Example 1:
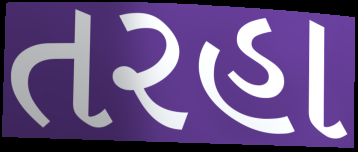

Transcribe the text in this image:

તરહા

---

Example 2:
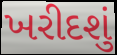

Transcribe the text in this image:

ખરીદશું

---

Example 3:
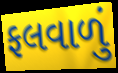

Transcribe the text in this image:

ફલવાળું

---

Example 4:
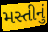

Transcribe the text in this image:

મસ્તીનું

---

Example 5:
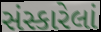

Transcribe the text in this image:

સંસ્કારેલાં